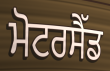
ਮੋਟਰਸੈੱਡ